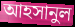
আহসানুল